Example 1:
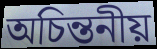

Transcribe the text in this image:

অচিন্তনীয়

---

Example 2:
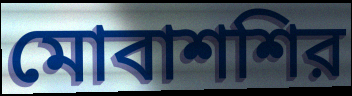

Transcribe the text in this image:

মোবাশশির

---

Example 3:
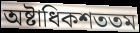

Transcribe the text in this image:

অষ্টাধিকশততম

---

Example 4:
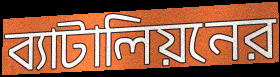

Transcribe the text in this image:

ব্যাটালিয়নের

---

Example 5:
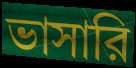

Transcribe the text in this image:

ভাসারি